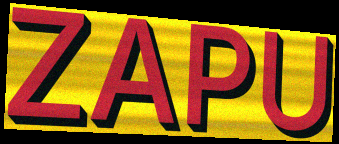
ZAPU